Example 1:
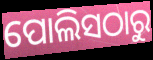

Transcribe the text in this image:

ପୋଲିସଠାରୁ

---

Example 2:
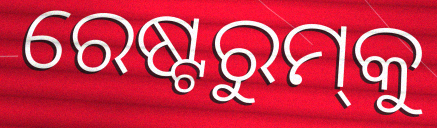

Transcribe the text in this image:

ରେଷ୍ଟରୁମ୍‌କୁ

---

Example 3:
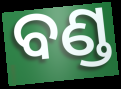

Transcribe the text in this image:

ବଣ୍ଡ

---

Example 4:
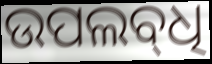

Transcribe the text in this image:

ଉପଲବ୍‍ଧି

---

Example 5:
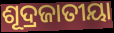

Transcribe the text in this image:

ଶୂଦ୍ରଜାତୀୟା